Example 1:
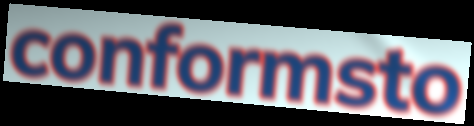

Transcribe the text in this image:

conformsto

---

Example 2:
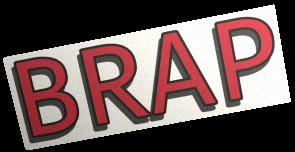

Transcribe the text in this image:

BRAP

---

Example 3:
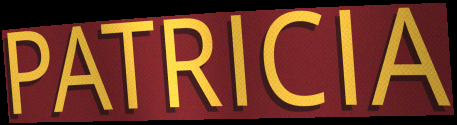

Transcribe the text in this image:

PATRICIA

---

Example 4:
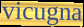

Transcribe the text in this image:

vicugna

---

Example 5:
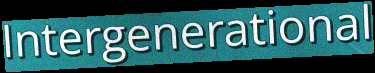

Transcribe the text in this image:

Intergenerational